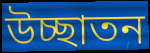
উচ্ছাতন